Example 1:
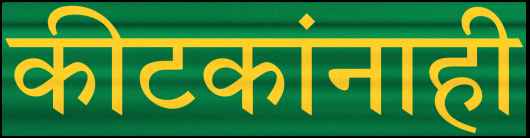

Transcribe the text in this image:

कीटकांनाही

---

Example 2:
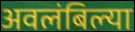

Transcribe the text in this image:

अवलंबिल्या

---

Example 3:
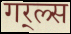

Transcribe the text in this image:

गर्ल्स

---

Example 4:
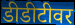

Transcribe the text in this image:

डीडीटीवर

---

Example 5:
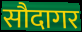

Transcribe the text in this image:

सौदागर